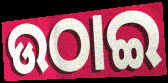
ଉଠାଇ